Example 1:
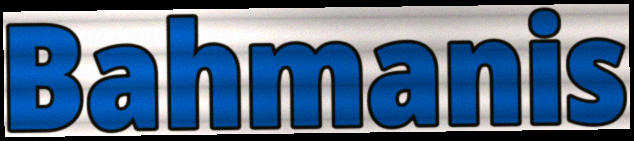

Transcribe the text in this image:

Bahmanis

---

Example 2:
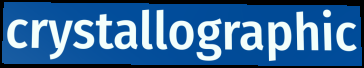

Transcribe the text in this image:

crystallographic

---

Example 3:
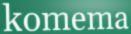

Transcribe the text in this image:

komema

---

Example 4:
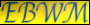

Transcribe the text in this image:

EBWM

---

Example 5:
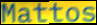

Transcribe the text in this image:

Mattos